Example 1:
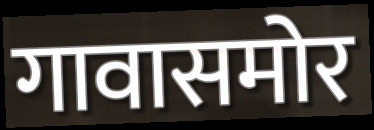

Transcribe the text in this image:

गावासमोर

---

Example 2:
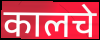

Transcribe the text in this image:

कालचे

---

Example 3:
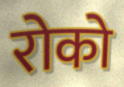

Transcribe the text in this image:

रोको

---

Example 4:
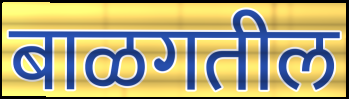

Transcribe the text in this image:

बाळगतील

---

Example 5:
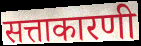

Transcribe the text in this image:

सत्ताकारणी